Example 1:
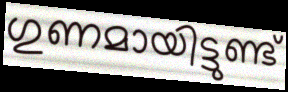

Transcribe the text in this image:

ഗുണമായിട്ടുണ്ട്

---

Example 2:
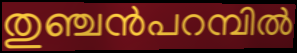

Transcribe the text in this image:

തുഞ്ചൻപറമ്പിൽ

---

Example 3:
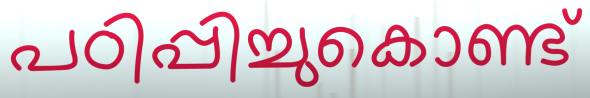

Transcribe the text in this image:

പഠിപ്പിച്ചുകൊണ്ട്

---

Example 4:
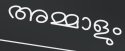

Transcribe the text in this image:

അമ്മാളും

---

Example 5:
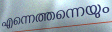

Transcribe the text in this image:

എന്നെത്തന്നെയും